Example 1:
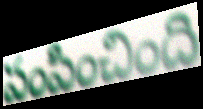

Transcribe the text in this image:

పంపించింది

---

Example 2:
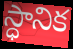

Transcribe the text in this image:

స్ధానిక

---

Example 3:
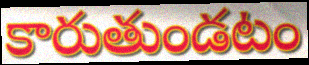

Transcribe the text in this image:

కారుతుండటం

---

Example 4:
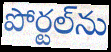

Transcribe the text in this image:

పోర్టల్‌ను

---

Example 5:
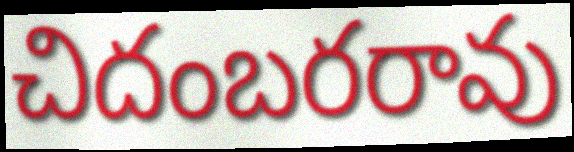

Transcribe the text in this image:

చిదంబరరావు